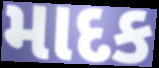
માદક